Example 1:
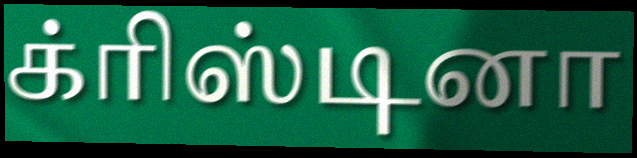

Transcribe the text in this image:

க்ரிஸ்டினா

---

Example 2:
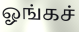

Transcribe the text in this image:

ஓங்கச்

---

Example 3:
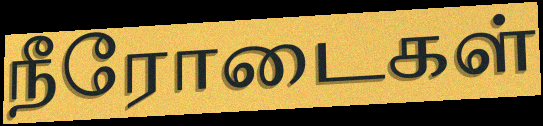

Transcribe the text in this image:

நீரோடைகள்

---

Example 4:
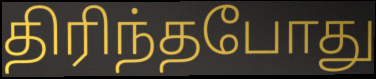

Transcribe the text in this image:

திரிந்தபோது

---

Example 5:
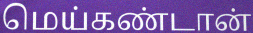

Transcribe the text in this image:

மெய்கண்டான்